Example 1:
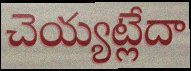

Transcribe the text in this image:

చెయ్యట్లేదా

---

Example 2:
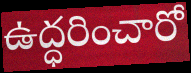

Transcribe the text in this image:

ఉద్ధరించారో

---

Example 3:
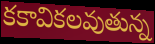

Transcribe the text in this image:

కకావికలవుతున్న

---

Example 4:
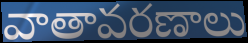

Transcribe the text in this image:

వాతావరణాలు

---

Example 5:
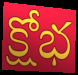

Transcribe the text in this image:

క్షోభ